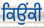
ਕਿਉਂਕੀ